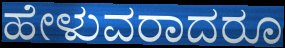
ಹೇಳುವರಾದರೂ